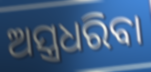
ଅସ୍ତ୍ରଧରିବା